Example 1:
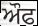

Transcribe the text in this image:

ਔਫ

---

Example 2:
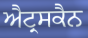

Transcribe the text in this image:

ਐਟ੍ਰਸਕੈਨ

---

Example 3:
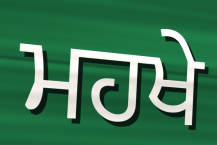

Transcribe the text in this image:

ਮਹਖੇ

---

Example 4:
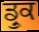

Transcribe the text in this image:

ਡ੍ਰੁਕ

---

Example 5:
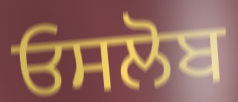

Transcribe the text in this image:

ਓਸਲੋਬ